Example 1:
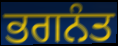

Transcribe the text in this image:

ਭਗਨੰਤ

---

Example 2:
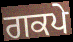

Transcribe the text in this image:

ਗਕਪੇ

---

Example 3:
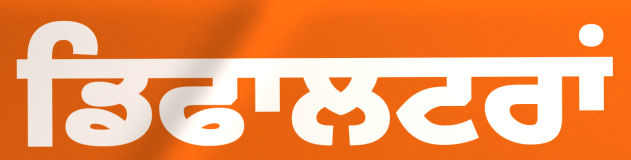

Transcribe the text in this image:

ਡਿਫਾਲਟਰਾਂ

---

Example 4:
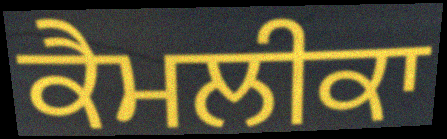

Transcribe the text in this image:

ਕੈਮਲੀਕਾ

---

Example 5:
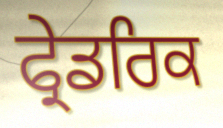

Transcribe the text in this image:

ਫ੍ਰੇਡਰਿਕ